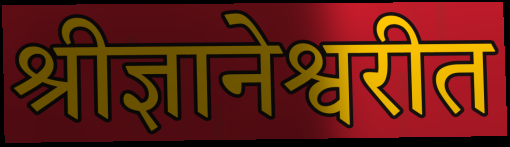
श्रीज्ञानेश्वरीत